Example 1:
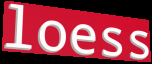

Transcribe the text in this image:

loess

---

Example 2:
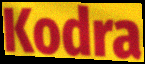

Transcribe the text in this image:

Kodra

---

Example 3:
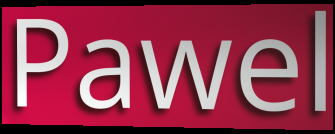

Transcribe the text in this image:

Pawel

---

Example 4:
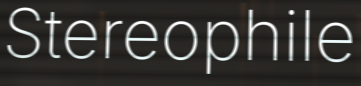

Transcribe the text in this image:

Stereophile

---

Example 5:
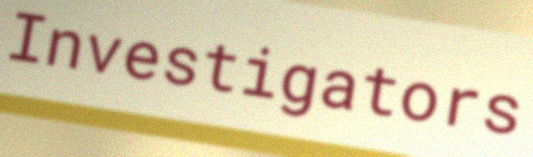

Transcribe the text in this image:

Investigators